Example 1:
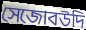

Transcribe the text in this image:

সেজোবউদি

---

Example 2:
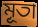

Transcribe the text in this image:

মূতা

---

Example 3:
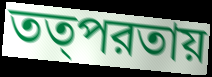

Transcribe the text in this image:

তত্পরতায়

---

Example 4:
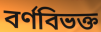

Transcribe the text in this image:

বর্ণবিভক্ত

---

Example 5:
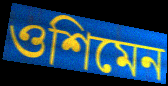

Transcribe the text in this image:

ওশিমেন